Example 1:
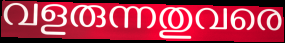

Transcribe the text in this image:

വളരുന്നതുവരെ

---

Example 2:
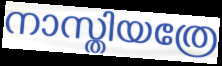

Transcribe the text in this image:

നാസ്തിയത്രേ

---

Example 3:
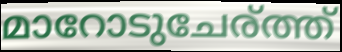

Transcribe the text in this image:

മാറോടുചേര്ത്ത്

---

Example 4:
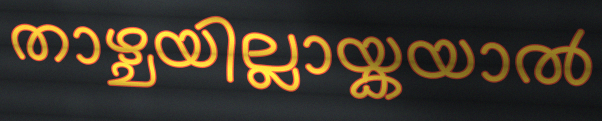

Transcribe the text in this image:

താഴ്ചയില്ലായ്കയാൽ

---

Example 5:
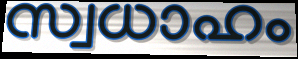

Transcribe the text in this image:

സ്വധാഹം